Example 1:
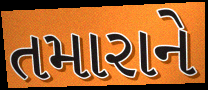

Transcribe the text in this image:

તમારાને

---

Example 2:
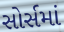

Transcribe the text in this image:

સોર્સમાં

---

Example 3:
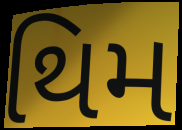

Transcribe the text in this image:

થિમ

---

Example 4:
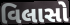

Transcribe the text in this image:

વિલાસો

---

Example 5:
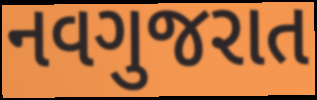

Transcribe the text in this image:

નવગુજરાત